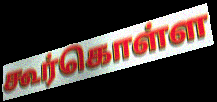
கூர்கொள்ள